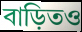
বাড়িতও